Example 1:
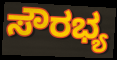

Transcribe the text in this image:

ಸೌರಭ್ಯ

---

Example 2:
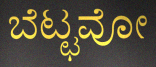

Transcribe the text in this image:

ಬೆಟ್ಟವೋ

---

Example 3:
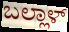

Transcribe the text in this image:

ಬಲ್ಲಾಳ್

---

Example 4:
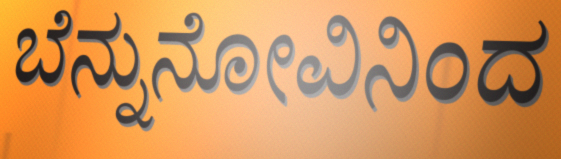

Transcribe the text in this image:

ಬೆನ್ನುನೋವಿನಿಂದ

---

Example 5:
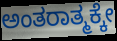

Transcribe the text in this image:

ಅಂತರಾತ್ಮಕ್ಕೇ